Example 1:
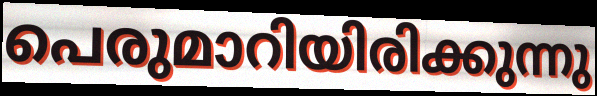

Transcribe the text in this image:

പെരുമാറിയിരിക്കുന്നു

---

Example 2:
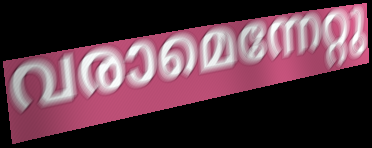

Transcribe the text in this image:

വരാമെന്നേറ്റു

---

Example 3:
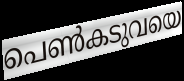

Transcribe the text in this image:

പെൺകടുവയെ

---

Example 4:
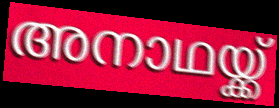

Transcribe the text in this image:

അനാഥയ്ക്ക്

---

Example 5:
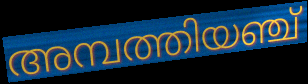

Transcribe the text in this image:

അമ്പത്തിയഞ്ച്